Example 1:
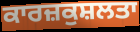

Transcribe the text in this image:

ਕਾਰਜ਼ਕੁਸ਼ਲਤਾ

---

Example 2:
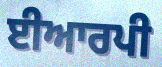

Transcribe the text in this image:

ਈਆਰਪੀ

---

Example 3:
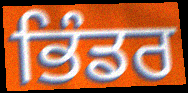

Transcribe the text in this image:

ਭਿੰਡਰ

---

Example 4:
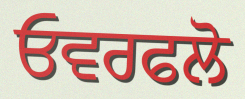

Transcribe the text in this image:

ਓਵਰਫਲੋ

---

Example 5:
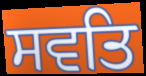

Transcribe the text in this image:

ਸਵਤਿ